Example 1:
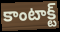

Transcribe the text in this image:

కాంటాక్ట్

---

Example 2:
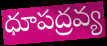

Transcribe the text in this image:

ధూపద్రవ్య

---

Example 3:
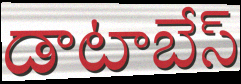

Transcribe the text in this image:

డాటాబేస్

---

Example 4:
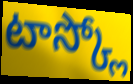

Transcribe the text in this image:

టాస్క్లో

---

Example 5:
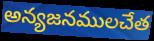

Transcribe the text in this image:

అన్యజనములచేత